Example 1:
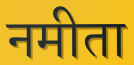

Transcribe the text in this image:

नमीता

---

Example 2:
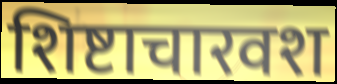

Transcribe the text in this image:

शिष्टाचारवश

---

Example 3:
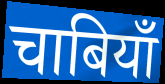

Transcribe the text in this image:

चाबियाँ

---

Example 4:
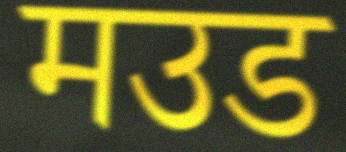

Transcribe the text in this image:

मउड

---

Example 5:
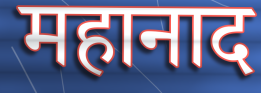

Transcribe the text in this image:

महानाद